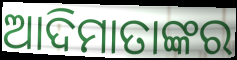
ଆଦିମାତାଙ୍କର